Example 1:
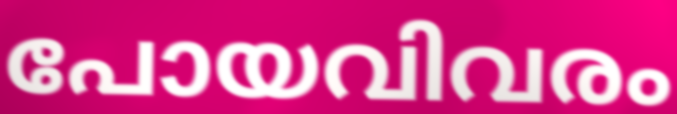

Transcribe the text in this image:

പോയവിവരം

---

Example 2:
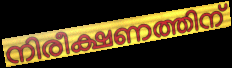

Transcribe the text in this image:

നിരീക്ഷണത്തിന്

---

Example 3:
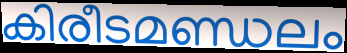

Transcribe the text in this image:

കിരീടമണ്ഡലം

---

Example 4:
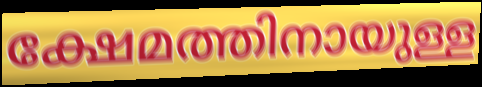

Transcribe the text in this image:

ക്ഷേമത്തിനായുള്ള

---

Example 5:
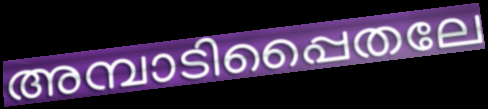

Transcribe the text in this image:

അമ്പാടിപ്പൈതലേ